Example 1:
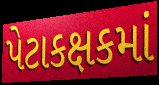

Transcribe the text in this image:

પેટાકક્ષકમાં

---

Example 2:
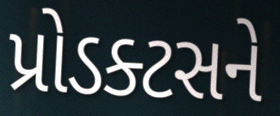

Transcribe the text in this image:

પ્રોડક્ટસને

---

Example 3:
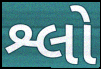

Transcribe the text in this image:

શ્લો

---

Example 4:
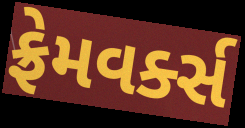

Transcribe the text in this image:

ફ્રેમવર્ક્સ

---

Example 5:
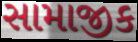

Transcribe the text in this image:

સામાજીક